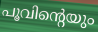
പൂവിന്റെയും